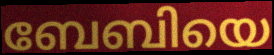
ബേബിയെ